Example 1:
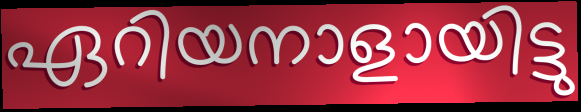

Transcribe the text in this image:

ഏറിയനാളായിട്ടു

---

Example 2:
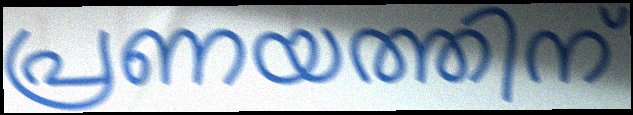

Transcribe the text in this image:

പ്രണയത്തിന്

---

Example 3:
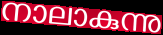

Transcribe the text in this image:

നാലാകുന്നു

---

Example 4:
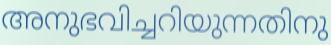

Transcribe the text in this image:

അനുഭവിച്ചറിയുന്നതിനു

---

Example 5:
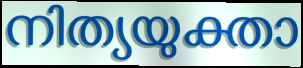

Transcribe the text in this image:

നിത്യയുക്താ